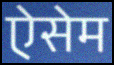
ऐसेम